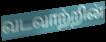
வடவாற்றின்